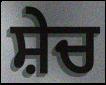
ਸ਼ੇਚ